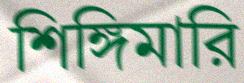
শিঙ্গিমারি